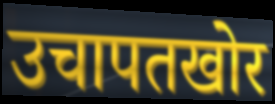
उचापतखोर